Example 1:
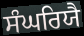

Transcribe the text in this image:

ਸੰਘਰਿਯੈ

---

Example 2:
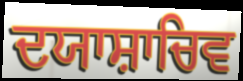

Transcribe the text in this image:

ਦਯਾਸ਼ਾਚਿਵ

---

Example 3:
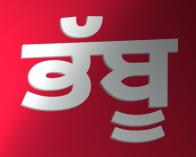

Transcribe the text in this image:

ਭੱਬੂ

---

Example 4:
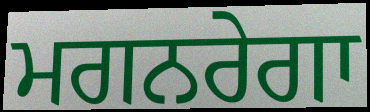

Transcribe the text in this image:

ਮਗਨਰੇਗਾ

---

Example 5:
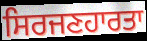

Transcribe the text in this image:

ਸਿਰਜਣਹਾਰਤਾ